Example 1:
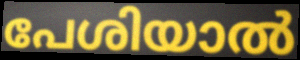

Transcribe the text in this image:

പേശിയാൽ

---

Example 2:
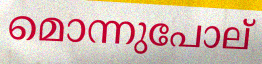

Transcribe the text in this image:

മൊന്നുപോല്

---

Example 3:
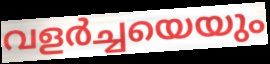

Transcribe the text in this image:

വളർച്ചയെയും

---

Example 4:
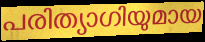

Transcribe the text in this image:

പരിത്യാഗിയുമായ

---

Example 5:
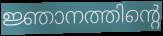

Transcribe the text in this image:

ജ്ഞാനത്തിന്റെ